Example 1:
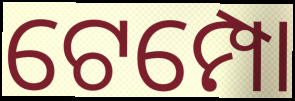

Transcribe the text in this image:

ଟେମ୍ପୋ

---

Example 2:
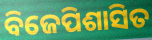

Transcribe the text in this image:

ବିଜେପିଶାସିତ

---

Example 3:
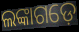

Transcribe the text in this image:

ଲଙ୍କାଗଡ଼େ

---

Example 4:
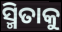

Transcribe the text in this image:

ସ୍ମିତାକୁ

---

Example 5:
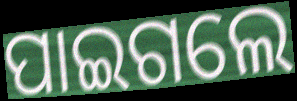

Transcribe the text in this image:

ପାଇଗଲେ